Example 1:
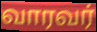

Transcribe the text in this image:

வாரவர்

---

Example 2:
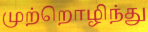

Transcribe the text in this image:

முற்றொழிந்து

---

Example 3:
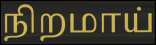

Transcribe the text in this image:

நிறமாய்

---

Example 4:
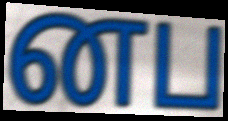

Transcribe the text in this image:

னப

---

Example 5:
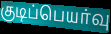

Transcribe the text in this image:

குடிப்பெயர்வு